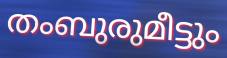
തംബുരുമീട്ടും